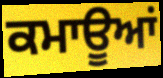
ਕਮਾਊਆਂ